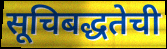
सूचिबद्धतेची